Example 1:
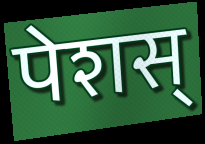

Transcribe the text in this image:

पेशस्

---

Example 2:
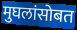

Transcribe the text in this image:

मुघलांसोबत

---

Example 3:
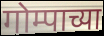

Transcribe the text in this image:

गोम्पाच्या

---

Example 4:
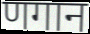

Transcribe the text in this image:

णगान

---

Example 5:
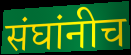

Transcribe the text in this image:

संघांनीच